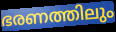
ഭരണത്തിലും